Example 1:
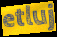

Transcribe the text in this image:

etluj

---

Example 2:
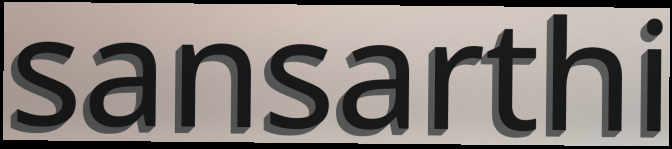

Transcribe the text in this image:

sansarthi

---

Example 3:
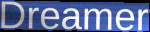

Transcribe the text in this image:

Dreamer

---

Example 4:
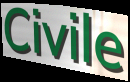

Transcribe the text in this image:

Civile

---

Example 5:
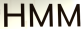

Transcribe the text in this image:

HMM